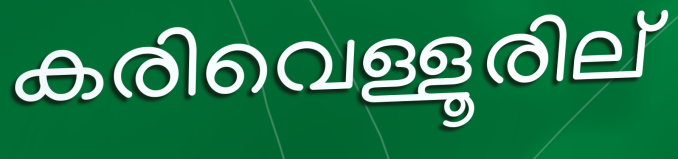
കരിവെള്ളൂരില്